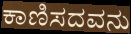
ಕಾಣಿಸದವನು